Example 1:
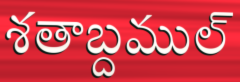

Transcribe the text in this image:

శతాబ్దముల్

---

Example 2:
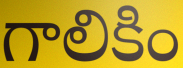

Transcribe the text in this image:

గాలికిం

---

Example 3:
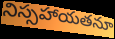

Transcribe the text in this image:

నిస్సహాయతనూ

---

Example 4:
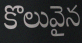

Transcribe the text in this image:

కొలువైన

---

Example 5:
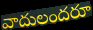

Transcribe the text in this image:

వాదులందరూ